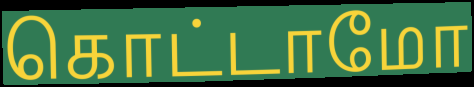
கொட்டாமோ